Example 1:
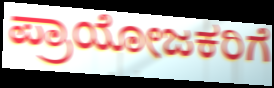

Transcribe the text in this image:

ಪ್ರಾಯೋಜಕರಿಗೆ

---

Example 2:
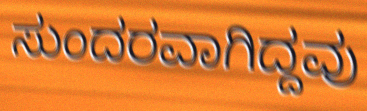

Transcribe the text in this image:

ಸುಂದರವಾಗಿದ್ದವು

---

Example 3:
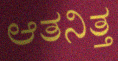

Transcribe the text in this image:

ಆತನಿತ್ತ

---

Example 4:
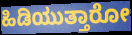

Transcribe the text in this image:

ಹಿಡಿಯುತ್ತಾರೋ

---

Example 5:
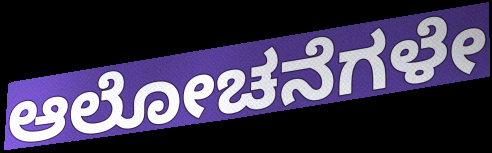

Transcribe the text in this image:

ಆಲೋಚನೆಗಳೇ